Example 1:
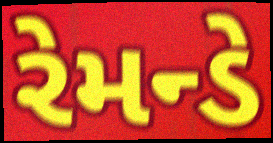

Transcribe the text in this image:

રેમન્ડે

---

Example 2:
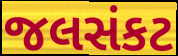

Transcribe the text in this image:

જલસંકટ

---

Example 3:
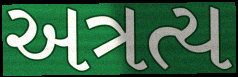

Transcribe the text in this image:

અત્રત્ય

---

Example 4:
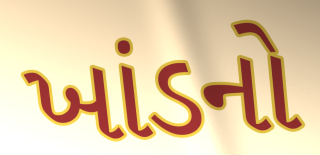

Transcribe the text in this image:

ખાંડનો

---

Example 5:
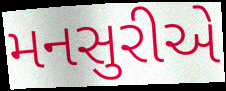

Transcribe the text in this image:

મનસુરીએ